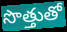
సొత్తుతో